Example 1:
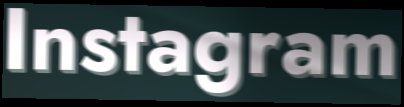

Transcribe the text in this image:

Instagram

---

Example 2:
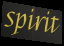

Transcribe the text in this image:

spirit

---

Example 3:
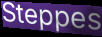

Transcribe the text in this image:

Steppes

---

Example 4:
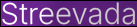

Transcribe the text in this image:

Streevada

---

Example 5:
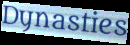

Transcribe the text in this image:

Dynasties